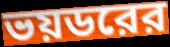
ভয়ডরের